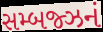
સમ્બજ્ઝનં